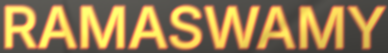
RAMASWAMY